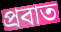
প্রবাত